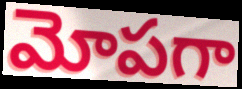
మోపగా